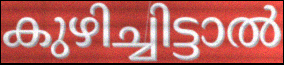
കുഴിച്ചിട്ടാൽ